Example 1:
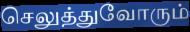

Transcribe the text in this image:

செலுத்துவோரும்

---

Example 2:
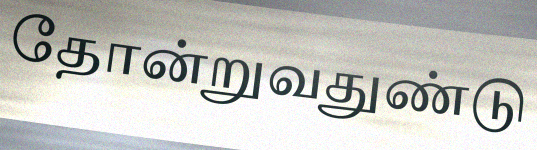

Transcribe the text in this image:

தோன்றுவதுண்டு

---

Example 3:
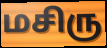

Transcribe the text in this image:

மசிரு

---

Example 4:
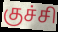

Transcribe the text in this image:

குச்சி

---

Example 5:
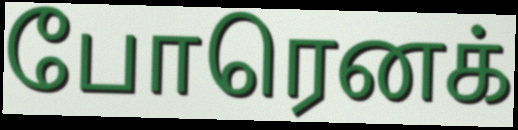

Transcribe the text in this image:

போரெனக்